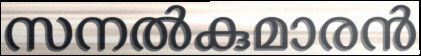
സനൽകുമാരൻ